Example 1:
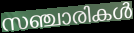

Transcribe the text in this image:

സഞ്ചാരികൾ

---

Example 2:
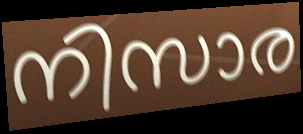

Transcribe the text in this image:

നിസാര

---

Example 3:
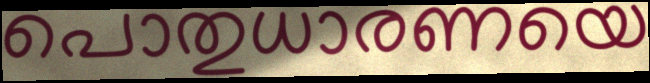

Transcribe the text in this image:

പൊതുധാരണയെ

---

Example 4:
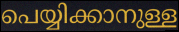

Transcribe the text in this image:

പെയ്യിക്കാനുള്ള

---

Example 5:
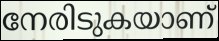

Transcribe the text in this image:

നേരിടുകയാണ്